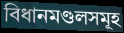
বিধানমণ্ডলসমূহ